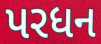
પરધન